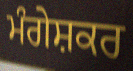
ਮੰਗੇਸ਼ਕਰ